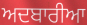
ਅਦਬਾਰੀਆ